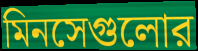
মিনসেগুলোর